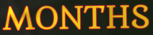
MONTHS